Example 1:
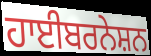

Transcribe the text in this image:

ਹਾਈਬਰਨੇਸ਼ਨ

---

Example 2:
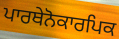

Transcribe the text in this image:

ਪਾਰਥੇਨੋਕਾਰਪਿਕ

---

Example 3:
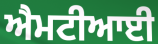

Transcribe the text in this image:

ਐਮਟੀਆਈ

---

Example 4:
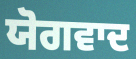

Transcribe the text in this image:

ਯੋਗਵਾਦ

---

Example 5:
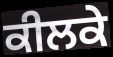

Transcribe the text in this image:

ਕੀਲਕੇ